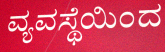
ವ್ಯವಸ್ಥೆಯಿಂದ